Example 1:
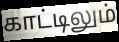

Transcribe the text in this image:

காட்டிலும்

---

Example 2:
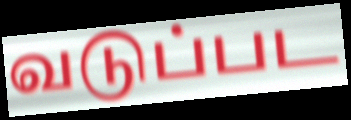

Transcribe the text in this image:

வடுப்பட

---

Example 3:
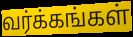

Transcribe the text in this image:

வர்க்கங்கள்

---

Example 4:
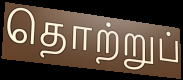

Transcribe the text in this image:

தொற்றுப்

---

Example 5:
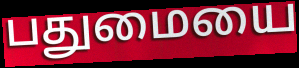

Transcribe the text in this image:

பதுமையை